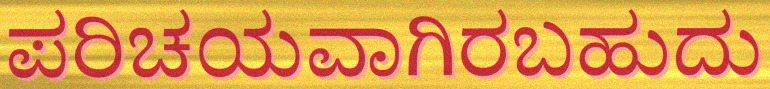
ಪರಿಚಯವಾಗಿರಬಹುದು